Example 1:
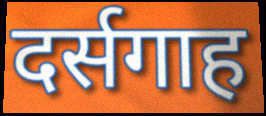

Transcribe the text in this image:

दर्सगाह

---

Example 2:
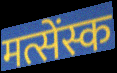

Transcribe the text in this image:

मत्सेंस्क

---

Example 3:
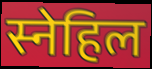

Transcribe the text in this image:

स्नेहिल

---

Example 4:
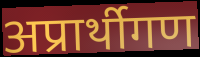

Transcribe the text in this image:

अप्रार्थीगण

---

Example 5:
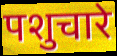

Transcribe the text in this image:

पशुचारे